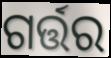
ଗର୍ତ୍ତର